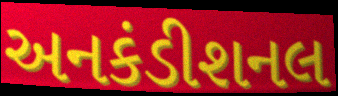
અનકંડીશનલ